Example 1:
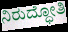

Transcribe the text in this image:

ನಿರುದ್ಧೋತಿ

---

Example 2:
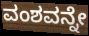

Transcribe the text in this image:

ವಂಶವನ್ನೇ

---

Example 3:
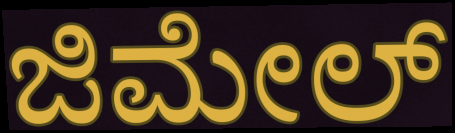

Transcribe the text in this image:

ಜಿಮೇಲ್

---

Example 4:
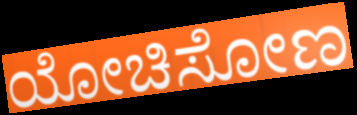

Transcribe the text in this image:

ಯೋಚಿಸೋಣ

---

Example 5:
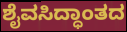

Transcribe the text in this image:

ಶೈವಸಿದ್ಧಾಂತದ